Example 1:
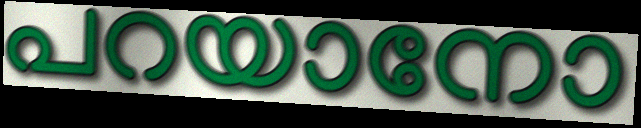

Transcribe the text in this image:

പറയാനോ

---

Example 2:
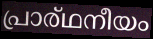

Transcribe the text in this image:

പ്രാര്ഥനീയം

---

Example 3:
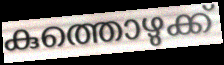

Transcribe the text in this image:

കുത്തൊഴുക്ക്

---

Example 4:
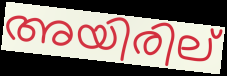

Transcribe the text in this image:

അയിരില്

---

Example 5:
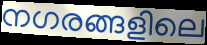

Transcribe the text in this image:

നഗരങ്ങളിലെ